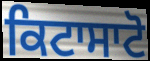
ਕਿਟਾਸਾਟੋ